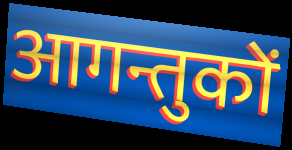
आगन्तुकों